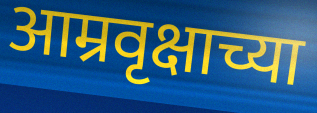
आम्रवृक्षाच्या